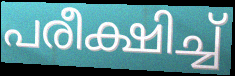
പരീക്ഷിച്ച്